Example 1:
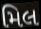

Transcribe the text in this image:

મિલ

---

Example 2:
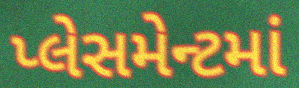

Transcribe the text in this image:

પ્લેસમેન્ટમાં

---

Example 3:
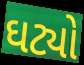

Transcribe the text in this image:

ઘટ્યો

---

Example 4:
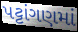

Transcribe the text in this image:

પટ્ટાંગણમાં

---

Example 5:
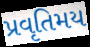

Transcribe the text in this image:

પ્રવૃતિમય